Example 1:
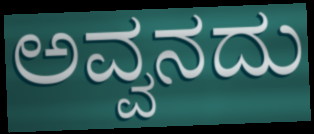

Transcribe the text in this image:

ಅವ್ವನದು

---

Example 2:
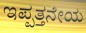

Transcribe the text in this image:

ಇಪ್ಪತ್ತನೇಯ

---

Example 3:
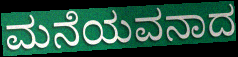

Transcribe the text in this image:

ಮನೆಯವನಾದ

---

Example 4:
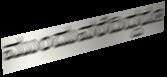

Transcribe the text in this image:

ಮುಂದುವರೆದಿದ್ದರೂ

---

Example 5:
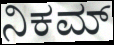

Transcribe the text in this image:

ನಿಕಮ್